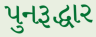
પુનરૂદ્ધાર